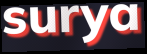
surya